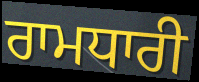
ਰਾਮਧਾਰੀ